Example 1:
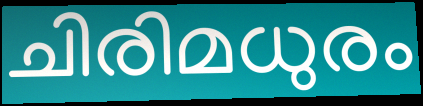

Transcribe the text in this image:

ചിരിമധുരം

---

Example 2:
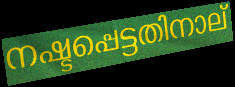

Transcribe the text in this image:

നഷ്ടപ്പെട്ടതിനാല്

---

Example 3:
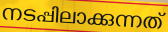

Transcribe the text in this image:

നടപ്പിലാക്കുന്നത്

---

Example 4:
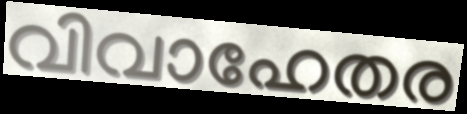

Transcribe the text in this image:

വിവാഹേതര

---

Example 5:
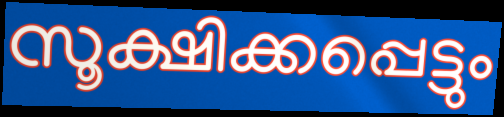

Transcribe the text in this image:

സൂക്ഷിക്കപ്പെട്ടും